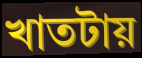
খাতটায়